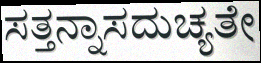
ಸತ್ತನ್ನಾಸದುಚ್ಯತೇ